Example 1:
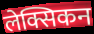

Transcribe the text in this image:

लेक्सिकन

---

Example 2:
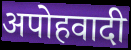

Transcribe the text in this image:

अपोहवादी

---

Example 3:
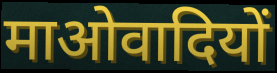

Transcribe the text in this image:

माओवादियों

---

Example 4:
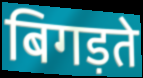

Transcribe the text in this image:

बिगड़ते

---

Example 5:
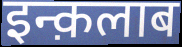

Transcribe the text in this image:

इन्क़लाब